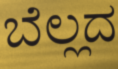
ಬೆಲ್ಲದ